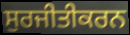
ਸੁਰਜੀਤੀਕਰਨ